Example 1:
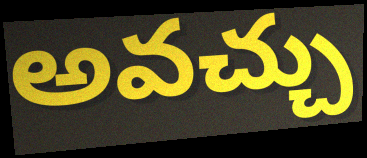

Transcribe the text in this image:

అవచ్చు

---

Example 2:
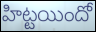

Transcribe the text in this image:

హిట్టయిందో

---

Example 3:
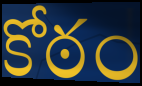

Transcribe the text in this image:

కోఠం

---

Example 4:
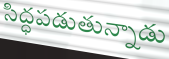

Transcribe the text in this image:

సిద్ధపడుతున్నాడు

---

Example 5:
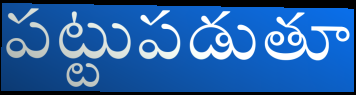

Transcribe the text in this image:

పట్టుపడుతూ